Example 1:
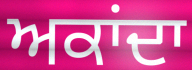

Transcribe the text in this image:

ਅਕਾਂਦਾ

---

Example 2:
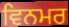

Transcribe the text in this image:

ਵਿਨਮਰ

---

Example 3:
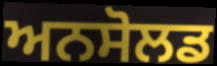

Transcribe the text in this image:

ਅਨਸੋਲਡ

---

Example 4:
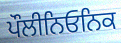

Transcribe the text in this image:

ਪੌਲੀਨਿਓਨਿਕ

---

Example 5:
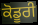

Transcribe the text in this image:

ਕੋਡੂਰੀ